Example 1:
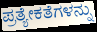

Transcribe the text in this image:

ಪ್ರತ್ಯೇಕತೆಗಳನ್ನು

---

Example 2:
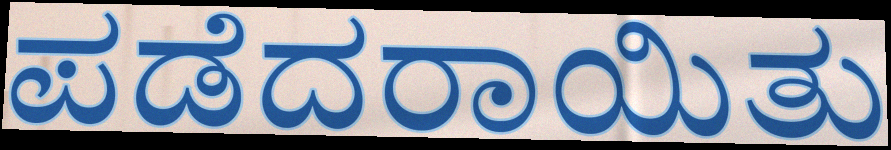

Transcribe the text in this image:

ಪಡೆದರಾಯಿತು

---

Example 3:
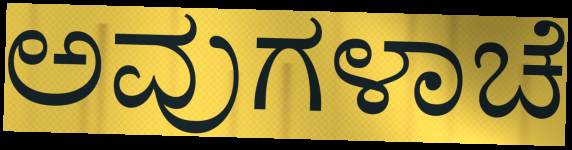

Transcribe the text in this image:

ಅವುಗಳಾಚೆ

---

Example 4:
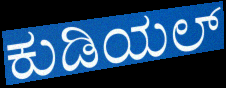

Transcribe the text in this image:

ಕುಡಿಯಲ್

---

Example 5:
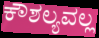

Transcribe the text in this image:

ಕೌಶಲ್ಯವಲ್ಲ